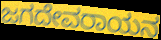
ಜಗದೇವರಾಯನ